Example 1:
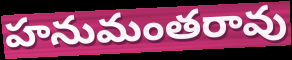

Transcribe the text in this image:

హనుమంతరావు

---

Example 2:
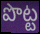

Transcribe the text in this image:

పొట్ట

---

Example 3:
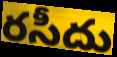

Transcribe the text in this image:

రసీదు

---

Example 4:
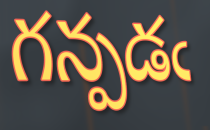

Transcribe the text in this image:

గన్పడఁ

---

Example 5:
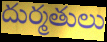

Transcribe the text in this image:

దుర్మతులు